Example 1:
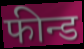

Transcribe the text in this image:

फीन्ड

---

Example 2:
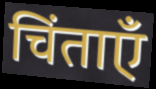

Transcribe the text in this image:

चिंताएँ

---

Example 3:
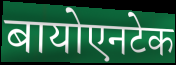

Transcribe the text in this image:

बायोएनटेक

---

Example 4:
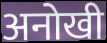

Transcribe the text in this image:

अनोखी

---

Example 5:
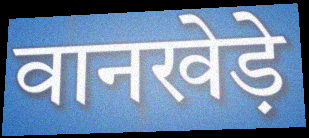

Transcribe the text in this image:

वानखेड़े